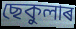
ছেকুলাৰ